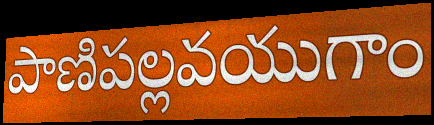
పాణిపల్లవయుగాం